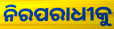
ନିରପରାଧୀକୁ